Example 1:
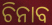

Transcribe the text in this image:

ଚିନାବ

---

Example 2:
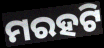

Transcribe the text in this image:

ମରହଟି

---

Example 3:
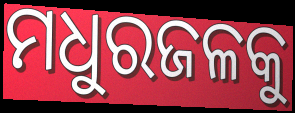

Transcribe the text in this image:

ମଧୁରଜଳକୁ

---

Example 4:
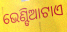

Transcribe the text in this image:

ଭେଣ୍ଡିଆଟାଏ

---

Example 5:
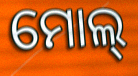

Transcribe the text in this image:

ମୋଲ୍